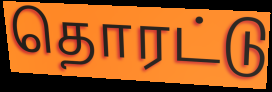
தொரட்டு